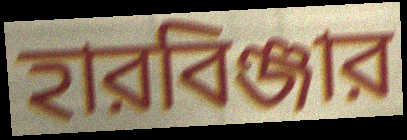
হারবিঞ্জার